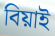
বিয়াই